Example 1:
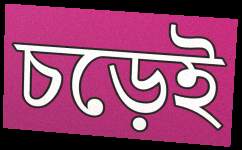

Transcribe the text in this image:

চড়েই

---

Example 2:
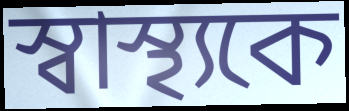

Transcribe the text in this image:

স্বাস্থ্যকে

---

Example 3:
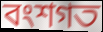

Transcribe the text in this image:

বংশগত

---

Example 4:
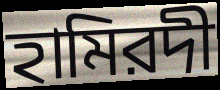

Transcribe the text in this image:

হামিরদী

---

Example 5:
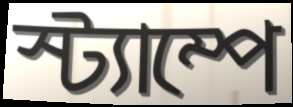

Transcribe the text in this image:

স্ট্যাম্পে